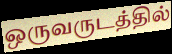
ஒருவருடத்தில்